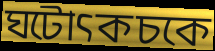
ঘটোৎকচকে